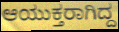
ಆಯುಕ್ತರಾಗಿದ್ದ